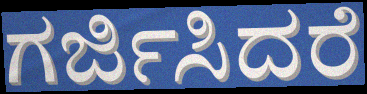
ಗರ್ಜಿಸಿದರೆ